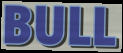
BULL